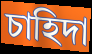
চাহিদা